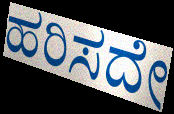
ಹರಿಸದೇ